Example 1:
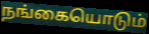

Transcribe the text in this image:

நங்கையொடும்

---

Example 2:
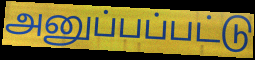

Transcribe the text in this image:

அனுப்பப்பட்டு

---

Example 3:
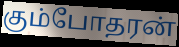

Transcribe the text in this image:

கும்போதரன்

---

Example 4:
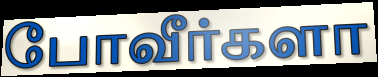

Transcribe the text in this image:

போவீர்களா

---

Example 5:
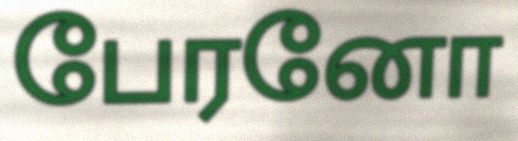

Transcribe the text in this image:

பேரனோ